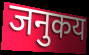
जनुकय